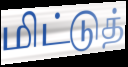
மிட்டுத்